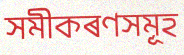
সমীকৰণসমূহ